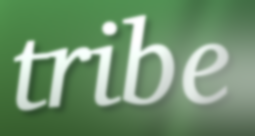
tribe